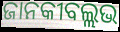
ଜାନକୀବଲ୍ଲଭ